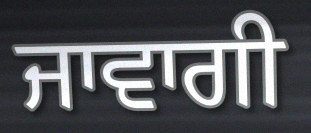
ਜਾਵਾਗੀ